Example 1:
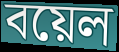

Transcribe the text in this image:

বয়েল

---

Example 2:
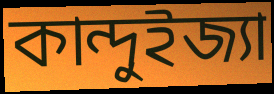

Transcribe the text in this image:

কান্দুইজ্যা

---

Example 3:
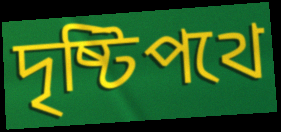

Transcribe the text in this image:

দৃষ্টিপথে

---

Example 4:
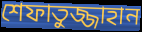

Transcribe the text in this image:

শেফাতুজ্জাহান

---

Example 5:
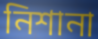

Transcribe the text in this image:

নিশানা